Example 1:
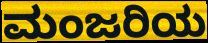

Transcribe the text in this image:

ಮಂಜರಿಯ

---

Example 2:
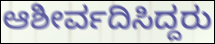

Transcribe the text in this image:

ಆಶೀರ್ವದಿಸಿದ್ದರು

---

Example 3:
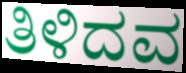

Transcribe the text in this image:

ತಿಳಿದವ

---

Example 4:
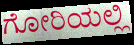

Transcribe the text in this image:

ಗೋರಿಯಲ್ಲಿ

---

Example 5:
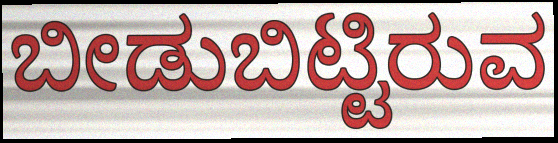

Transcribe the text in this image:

ಬೀಡುಬಿಟ್ಟಿರುವ